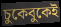
চুকেবুকেই